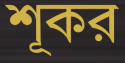
শূকর